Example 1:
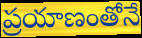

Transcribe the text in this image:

ప్రయాణంతోనే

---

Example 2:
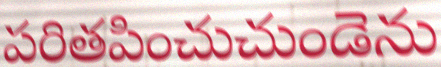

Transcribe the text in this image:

పరితపించుచుండెను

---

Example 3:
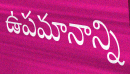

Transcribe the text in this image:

ఉపమానాన్ని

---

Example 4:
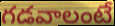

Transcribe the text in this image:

గడవాలంటే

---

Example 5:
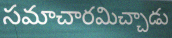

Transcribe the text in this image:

సమాచారమిచ్చాడు